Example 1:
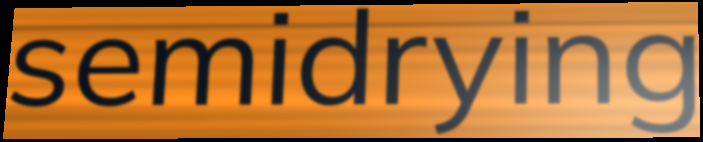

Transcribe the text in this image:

semidrying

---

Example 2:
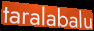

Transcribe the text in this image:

taralabalu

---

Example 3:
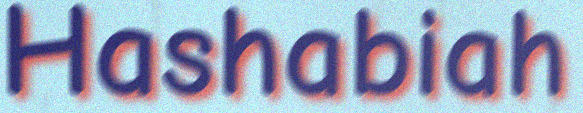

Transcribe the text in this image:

Hashabiah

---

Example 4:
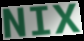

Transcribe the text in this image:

NIX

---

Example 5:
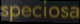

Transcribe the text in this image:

speciosa